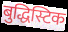
बुद्धिस्टिक